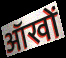
ऑखों